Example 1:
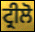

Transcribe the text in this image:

ਟ੍ਰੀਲੋ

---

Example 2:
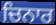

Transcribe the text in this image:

ਚਿਨਾਰ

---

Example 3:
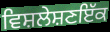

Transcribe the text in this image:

ਵਿਸ਼ਲੇਸ਼ਣਇੱਕ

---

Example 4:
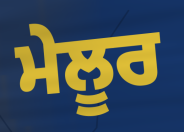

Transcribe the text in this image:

ਮੇਲੂਰ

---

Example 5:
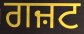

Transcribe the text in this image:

ਗਜ਼ਟ